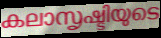
കലാസൃഷ്ടിയുടെ